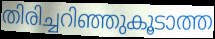
തിരിച്ചറിഞ്ഞുകൂടാത്ത